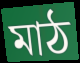
মাঠ